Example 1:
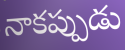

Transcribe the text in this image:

నాకప్పుడు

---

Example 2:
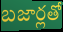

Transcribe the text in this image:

బజార్లతో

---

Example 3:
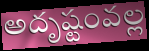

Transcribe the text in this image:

అదృష్టంవల్ల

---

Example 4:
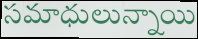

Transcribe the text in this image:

సమాధులున్నాయి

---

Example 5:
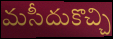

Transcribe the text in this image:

మసీదుకొచ్చి